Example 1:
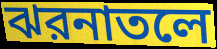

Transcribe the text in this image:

ঝরনাতলে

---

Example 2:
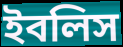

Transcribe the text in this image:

ইবলিস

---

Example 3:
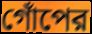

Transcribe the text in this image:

গোঁপের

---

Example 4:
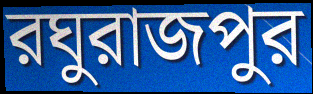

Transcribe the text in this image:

রঘুরাজপুর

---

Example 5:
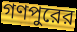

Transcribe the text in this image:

গণপুরের